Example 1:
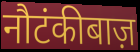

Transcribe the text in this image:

नौटंकीबाज़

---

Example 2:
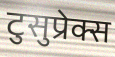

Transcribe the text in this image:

टुसुप्रेक्स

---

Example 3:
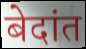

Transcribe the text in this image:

बेदांत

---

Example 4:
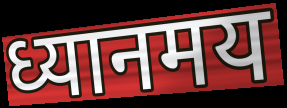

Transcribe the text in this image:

ध्यानमय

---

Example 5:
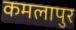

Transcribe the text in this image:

कमलापुर